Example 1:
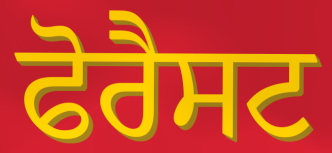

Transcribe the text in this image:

ਫੋਰੈਸਟ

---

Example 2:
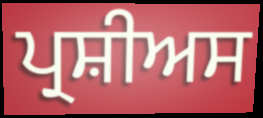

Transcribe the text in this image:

ਪ੍ਰਸ਼ੀਅਸ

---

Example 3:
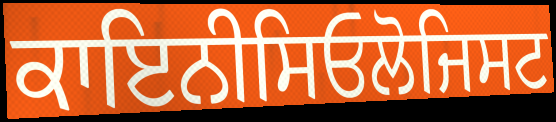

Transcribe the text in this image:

ਕਾਇਨੀਸਿਓਲੋਜਿਸਟ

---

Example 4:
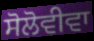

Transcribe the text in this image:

ਸੋਲੋਵੀਵਾ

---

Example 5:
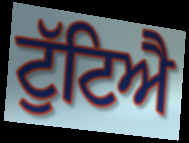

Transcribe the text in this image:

ਟੁੱਟਿਐ